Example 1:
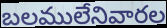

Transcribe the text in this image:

బలములేనివారల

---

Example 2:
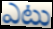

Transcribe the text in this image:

ఎటు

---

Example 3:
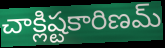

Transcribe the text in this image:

చాక్లిష్టకారిణమ్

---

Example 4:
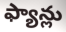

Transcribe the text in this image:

ఫ్యాన్లు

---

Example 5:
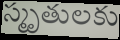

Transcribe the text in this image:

స్మృతులకు